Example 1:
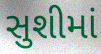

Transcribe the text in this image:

સુશીમાં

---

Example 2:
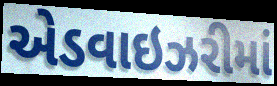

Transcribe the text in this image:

એડવાઇઝરીમાં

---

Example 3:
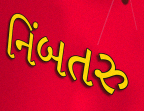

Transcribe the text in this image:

નિંબતરુ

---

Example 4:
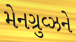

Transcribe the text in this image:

મેનગ્રુવ્ઝને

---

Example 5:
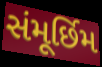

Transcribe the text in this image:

સંમૂર્છિમ